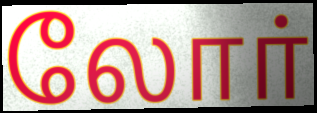
லோர்